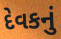
દેવકનું